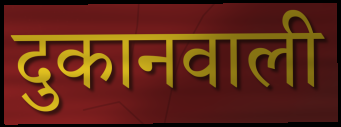
दुकानवाली